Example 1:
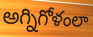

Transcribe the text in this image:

అగ్నిగోళంలా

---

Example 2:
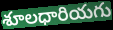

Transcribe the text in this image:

శూలధారియగు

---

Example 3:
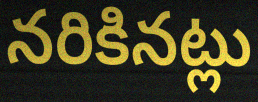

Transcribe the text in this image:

నరికినట్లు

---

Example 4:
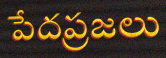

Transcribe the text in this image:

పేదప్రజలు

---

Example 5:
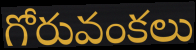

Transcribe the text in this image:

గోరువంకలు